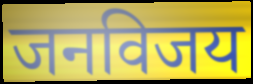
जनविजय